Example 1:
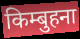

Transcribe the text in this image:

किम्बुहना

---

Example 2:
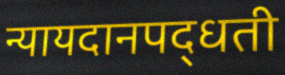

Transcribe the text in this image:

न्यायदानपद्धती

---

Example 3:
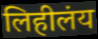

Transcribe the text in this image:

लिहीलंय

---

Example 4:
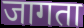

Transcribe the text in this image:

जागता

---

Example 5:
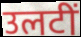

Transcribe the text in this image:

उलटीं